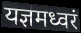
यज्ञमध्वरं